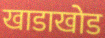
खाडाखोड